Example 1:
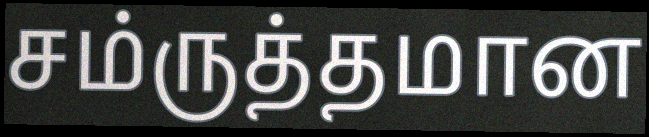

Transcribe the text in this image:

சம்ருத்தமான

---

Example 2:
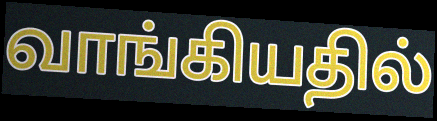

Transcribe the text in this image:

வாங்கியதில்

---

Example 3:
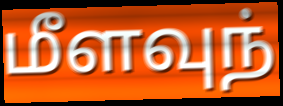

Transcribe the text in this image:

மீளவுந்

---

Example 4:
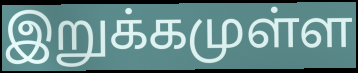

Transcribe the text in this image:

இறுக்கமுள்ள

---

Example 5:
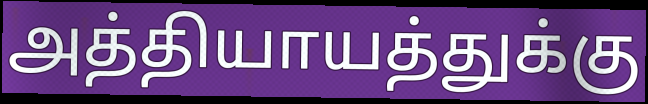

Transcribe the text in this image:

அத்தியாயத்துக்கு